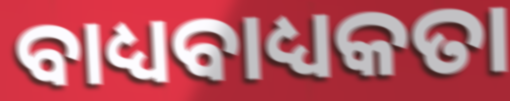
ବାଧ୍ୟବାଧ୍ୟକତା